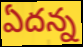
ఏదన్న